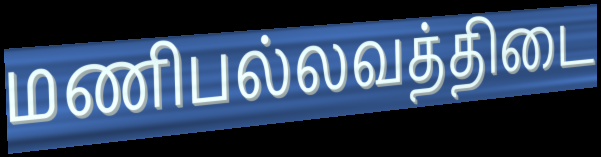
மணிபல்லவத்திடை